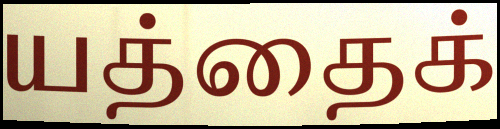
யத்தைக்